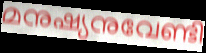
മനുഷ്യനുവേണ്ടി